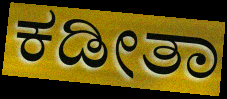
ಕಡೀತಾ